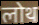
लोथ